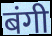
बंगी